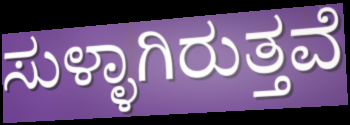
ಸುಳ್ಳಾಗಿರುತ್ತವೆ